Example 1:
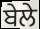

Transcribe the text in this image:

ਬੇਲੇ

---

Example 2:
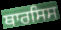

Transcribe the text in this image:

ਥਾਰਸਿਸ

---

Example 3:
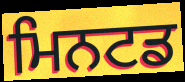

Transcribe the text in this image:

ਮਿਨਟਡ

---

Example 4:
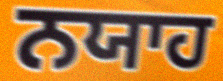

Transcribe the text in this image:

ਨਯਾਹ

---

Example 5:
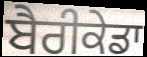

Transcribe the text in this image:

ਬੈਰੀਕੇਡਾ